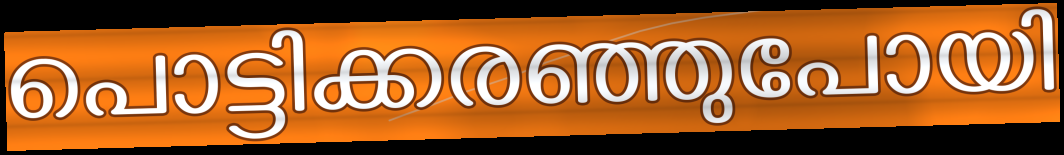
പൊട്ടിക്കരഞ്ഞുപോയി